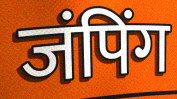
जंपिंग